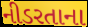
નીડરતાના